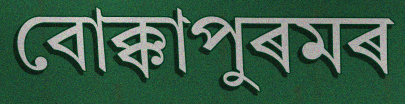
বোক্কাপুৰমৰ